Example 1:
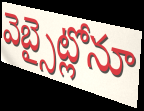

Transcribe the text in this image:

వెబ్సైట్లోనూ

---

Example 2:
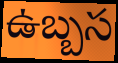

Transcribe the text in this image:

ఉబ్బస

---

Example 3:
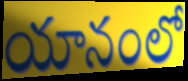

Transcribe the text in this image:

యానంలో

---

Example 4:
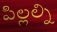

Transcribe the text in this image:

పిల్లల్ని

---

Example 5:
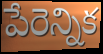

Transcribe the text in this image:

పేరెన్నిక